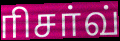
ரிசர்வ்